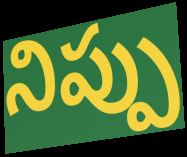
నిప్పు